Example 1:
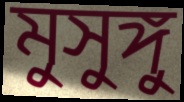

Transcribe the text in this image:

মুসুঙ্গু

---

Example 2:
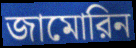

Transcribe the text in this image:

জামোরিন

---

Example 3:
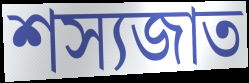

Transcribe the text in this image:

শস্যজাত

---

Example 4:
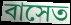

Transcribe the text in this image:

বাসেত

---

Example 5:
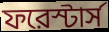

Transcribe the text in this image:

ফরেস্টার্স